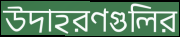
উদাহরণগুলির